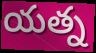
యత్న